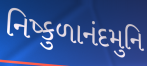
નિષ્કુળાનંદમુનિ